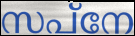
സപ്നേ